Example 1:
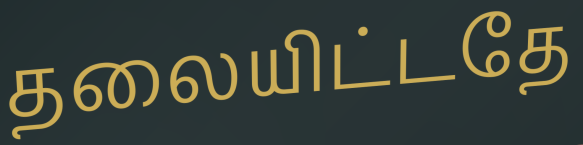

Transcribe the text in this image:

தலையிட்டதே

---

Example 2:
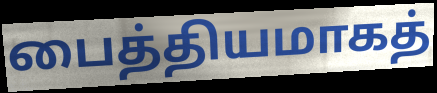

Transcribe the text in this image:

பைத்தியமாகத்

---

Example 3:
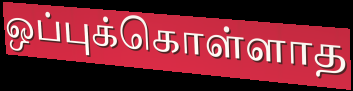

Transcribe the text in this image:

ஒப்புக்கொள்ளாத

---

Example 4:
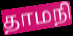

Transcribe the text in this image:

தாமநி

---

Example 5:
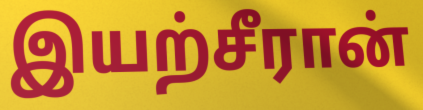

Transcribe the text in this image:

இயற்சீரான்